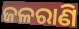
ଜଳରାଣି